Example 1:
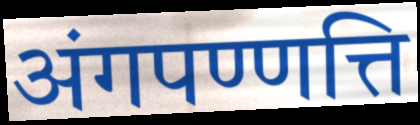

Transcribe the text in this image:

अंगपण्णत्ति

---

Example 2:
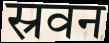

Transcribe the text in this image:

स्रवन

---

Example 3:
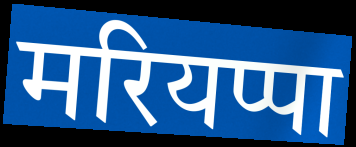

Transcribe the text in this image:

मरियप्पा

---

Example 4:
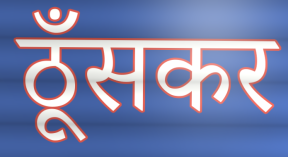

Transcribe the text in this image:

ठूँसकर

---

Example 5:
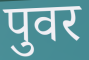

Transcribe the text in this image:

पुवर